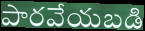
పారవేయబడి